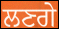
ਲਣਗੇ